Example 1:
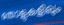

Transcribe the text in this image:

തോളുകളിലും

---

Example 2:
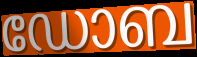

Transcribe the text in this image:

ഡോബ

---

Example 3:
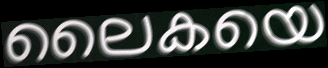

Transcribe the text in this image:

ലൈകയെ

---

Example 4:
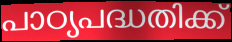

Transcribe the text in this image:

പാഠ്യപദ്ധതിക്ക്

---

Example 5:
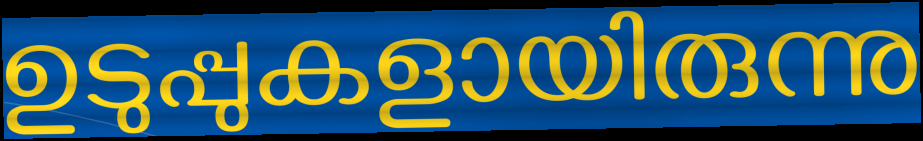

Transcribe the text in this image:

ഉടുപ്പുകളായിരുന്നു